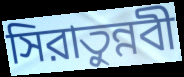
সিরাতুন্নবী